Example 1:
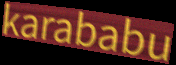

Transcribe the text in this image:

karababu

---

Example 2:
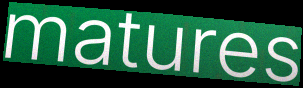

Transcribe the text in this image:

matures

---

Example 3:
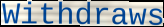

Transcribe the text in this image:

Withdraws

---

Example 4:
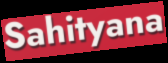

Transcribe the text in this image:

Sahityana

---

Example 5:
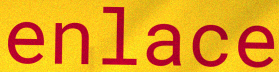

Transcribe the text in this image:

enlace